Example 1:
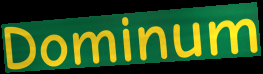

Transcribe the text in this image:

Dominum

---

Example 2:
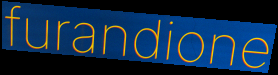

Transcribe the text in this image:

furandione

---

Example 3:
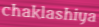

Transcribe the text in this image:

chaklashiya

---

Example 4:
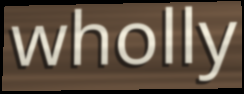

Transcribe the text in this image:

wholly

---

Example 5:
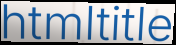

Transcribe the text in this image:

htmltitle